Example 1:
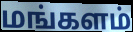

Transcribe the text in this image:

மங்களம்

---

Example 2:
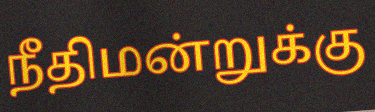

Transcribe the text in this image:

நீதிமன்றுக்கு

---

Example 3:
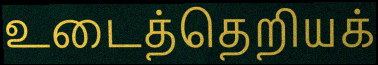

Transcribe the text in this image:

உடைத்தெறியக்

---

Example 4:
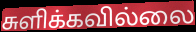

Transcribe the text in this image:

சுளிக்கவில்லை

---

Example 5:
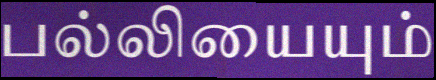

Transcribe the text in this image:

பல்லியையும்